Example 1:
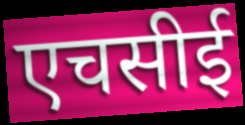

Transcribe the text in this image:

एचसीई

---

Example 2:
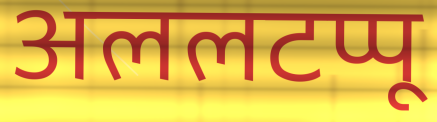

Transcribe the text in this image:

अललटप्पू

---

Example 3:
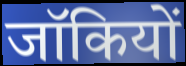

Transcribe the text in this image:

जॉकियों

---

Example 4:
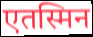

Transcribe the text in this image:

एतस्मिन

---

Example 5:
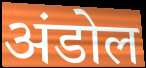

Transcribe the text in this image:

अंडोल